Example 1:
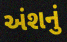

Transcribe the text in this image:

અંશનું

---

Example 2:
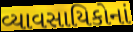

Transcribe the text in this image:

વ્યાવસાયિકોનાં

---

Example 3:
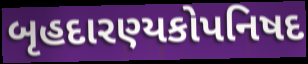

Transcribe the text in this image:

બૃહદારણ્યકોપનિષદ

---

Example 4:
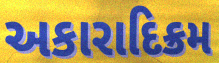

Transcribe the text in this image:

અકારાદિક્રમ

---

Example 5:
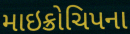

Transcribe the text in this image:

માઇક્રોચિપના